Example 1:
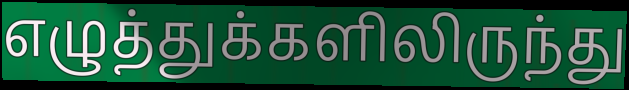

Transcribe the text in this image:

எழுத்துக்களிலிருந்து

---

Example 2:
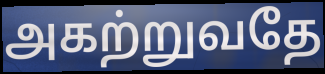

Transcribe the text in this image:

அகற்றுவதே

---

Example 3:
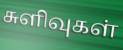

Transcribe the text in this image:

சுளிவுகள்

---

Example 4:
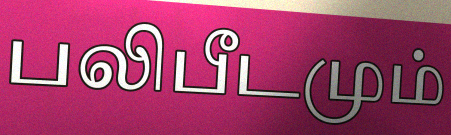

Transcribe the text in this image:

பலிபீடமும்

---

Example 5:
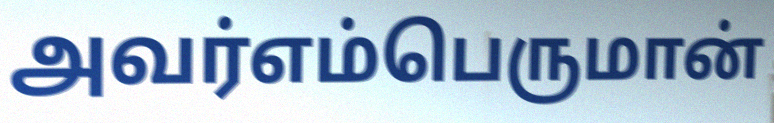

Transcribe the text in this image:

அவர்எம்பெருமான்